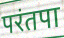
परंतपा